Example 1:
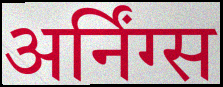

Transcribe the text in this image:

अर्निंग्स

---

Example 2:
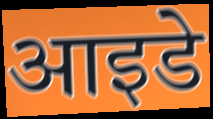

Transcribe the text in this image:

आइडे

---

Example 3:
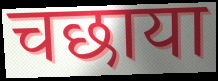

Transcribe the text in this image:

चछाया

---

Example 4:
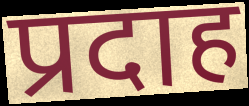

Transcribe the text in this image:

प्रदाह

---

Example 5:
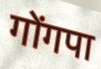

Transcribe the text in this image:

गोंगपा